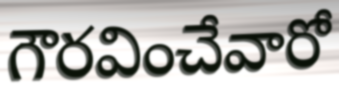
గౌరవించేవారో